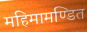
महिमामण्डित